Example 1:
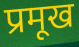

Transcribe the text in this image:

प्रमूख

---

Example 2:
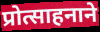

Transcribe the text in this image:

प्रोत्साहनाने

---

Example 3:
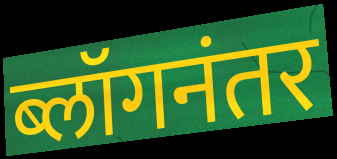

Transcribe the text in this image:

ब्लॉगनंतर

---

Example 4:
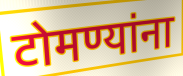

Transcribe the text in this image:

टोमण्यांना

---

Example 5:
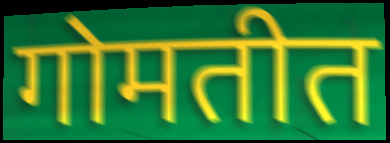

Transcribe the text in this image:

गोमतीत